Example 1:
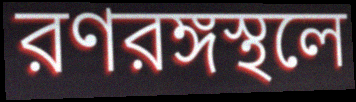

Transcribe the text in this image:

রণরঙ্গস্থলে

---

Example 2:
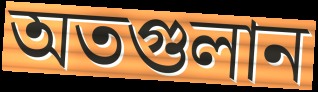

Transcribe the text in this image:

অতগুলান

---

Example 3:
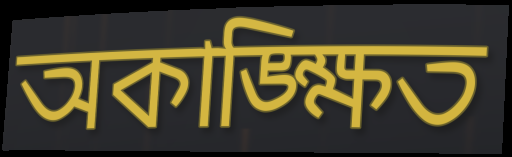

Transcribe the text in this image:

অকাঙ্ক্ষিত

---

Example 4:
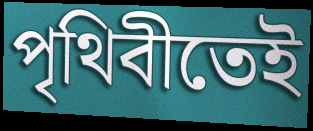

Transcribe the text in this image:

পৃথিবীতেই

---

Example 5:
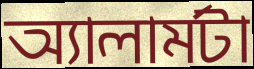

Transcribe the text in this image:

অ্যালার্মটা